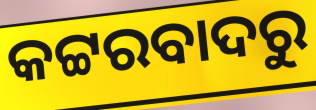
କଟ୍ଟରବାଦରୁ